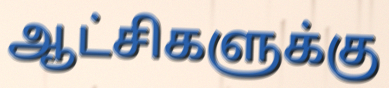
ஆட்சிகளுக்கு